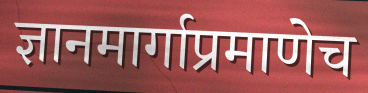
ज्ञानमार्गाप्रमाणेच